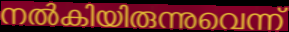
നൽകിയിരുന്നുവെന്ന്